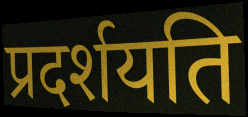
प्रदर्शयति